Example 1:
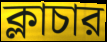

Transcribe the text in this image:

ক্লাচার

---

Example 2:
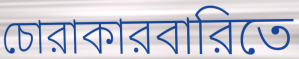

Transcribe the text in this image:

চোরাকারবারিতে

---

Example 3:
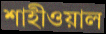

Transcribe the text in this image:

শাহীওয়াল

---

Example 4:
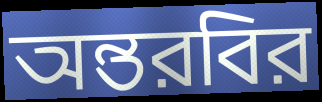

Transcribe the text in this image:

অন্তরবির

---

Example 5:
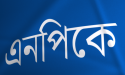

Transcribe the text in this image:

এনপিকে